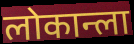
लोकान्ला